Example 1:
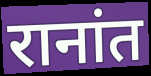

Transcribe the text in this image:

रानांत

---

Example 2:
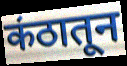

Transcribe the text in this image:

कंठातून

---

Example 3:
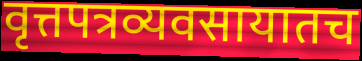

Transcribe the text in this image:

वृत्तपत्रव्यवसायातच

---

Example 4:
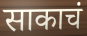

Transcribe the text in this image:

साकाचं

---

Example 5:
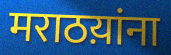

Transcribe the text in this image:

मराठय़ांना